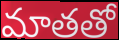
మాతతో